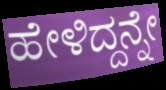
ಹೇಳಿದ್ದನ್ನೇ